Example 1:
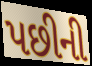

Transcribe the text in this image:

પછીની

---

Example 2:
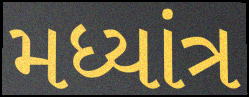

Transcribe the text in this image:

મધ્યાંત્ર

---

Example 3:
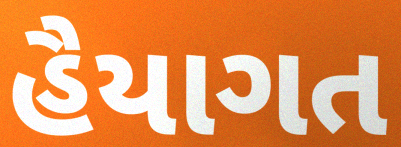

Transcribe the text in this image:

હૈયાગત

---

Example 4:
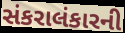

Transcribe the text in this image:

સંકરાલંકારની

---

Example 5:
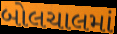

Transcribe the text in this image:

બોલચાલમાં